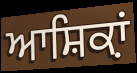
ਆਸ਼ਿਕ਼ਾਂ